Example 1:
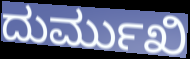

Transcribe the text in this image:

ದುರ್ಮುಖಿ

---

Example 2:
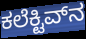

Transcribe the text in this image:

ಕಲೆಕ್ಟಿವ್‌ನ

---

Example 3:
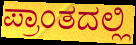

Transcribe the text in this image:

ಪ್ರಾಂತದಲ್ಲಿ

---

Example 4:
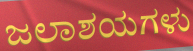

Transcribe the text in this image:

ಜಲಾಶಯಗಳು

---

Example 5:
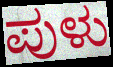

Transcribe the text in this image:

ಪುಳು